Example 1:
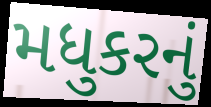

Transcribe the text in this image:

મધુકરનું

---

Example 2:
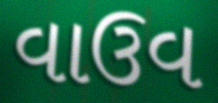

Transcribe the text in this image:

વાઉવ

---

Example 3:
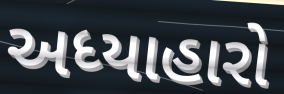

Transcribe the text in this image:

અધ્યાહારો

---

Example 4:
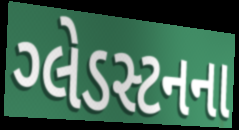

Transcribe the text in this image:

ગ્લેડસ્ટનના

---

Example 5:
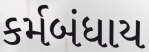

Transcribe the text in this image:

કર્મબંધાય